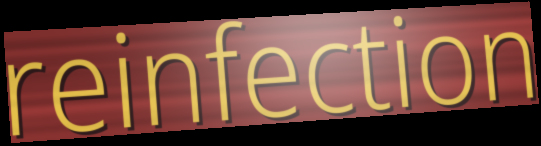
reinfection